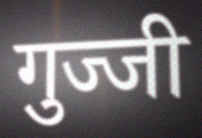
गुज्जी